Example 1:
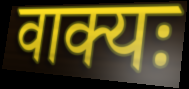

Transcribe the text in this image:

वाक्यः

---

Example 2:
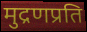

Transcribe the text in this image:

मुद्रणप्रति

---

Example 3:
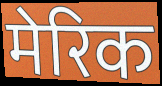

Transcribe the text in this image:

मेरिक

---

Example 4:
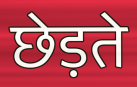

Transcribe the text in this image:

छेड़ते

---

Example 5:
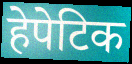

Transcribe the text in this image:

हेपेटिक